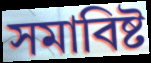
সমাবিষ্ট